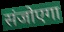
संजोएगा